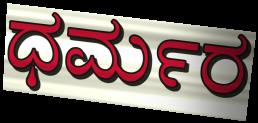
ಧರ್ಮರ